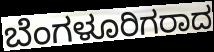
ಬೆಂಗಳೂರಿಗರಾದ